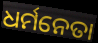
ଧର୍ମନେତା